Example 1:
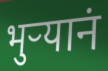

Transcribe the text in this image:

भुऱ्यानं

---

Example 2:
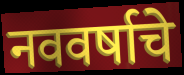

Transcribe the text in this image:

नववर्षाचे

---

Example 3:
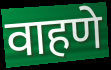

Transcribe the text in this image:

वाहणे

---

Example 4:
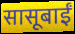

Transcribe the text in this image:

सासूबाईं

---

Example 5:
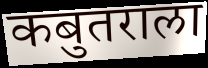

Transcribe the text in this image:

कबुतराला